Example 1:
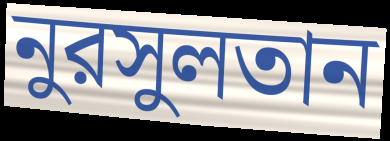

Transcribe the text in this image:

নুরসুলতান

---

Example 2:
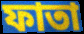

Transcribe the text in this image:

ফাতা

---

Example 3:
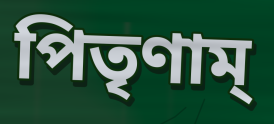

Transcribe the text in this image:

পিতৃণাম্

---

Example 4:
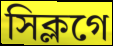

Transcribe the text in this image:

সিক্লগে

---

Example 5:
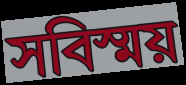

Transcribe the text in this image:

সবিস্ময়